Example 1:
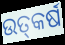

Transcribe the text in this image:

ଉତ୍‌କର୍ଷ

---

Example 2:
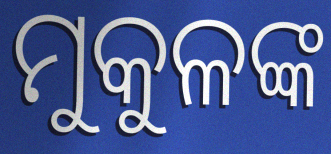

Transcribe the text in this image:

ମୁକୁଳଙ୍କ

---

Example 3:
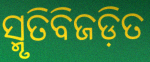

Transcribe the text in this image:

ସ୍ମୃତିବିଜଡ଼ିତ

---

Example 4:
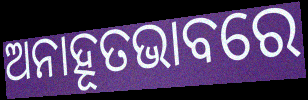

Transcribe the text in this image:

ଅନାହୂତଭାବରେ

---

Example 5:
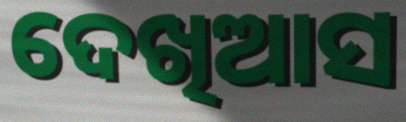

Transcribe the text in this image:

ଦେଖିଆସ